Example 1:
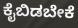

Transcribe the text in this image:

ಕೈಬಿಡಬೇಕೆ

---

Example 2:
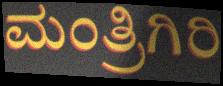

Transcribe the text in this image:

ಮಂತ್ರಿಗಿರಿ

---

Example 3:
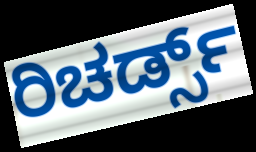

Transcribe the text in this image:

ರಿಚರ್ಡ್ಸ್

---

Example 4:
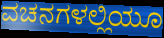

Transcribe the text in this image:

ವಚನಗಳಲ್ಲಿಯೂ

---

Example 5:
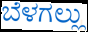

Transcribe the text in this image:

ಬೆಳಗಲ್ಲು